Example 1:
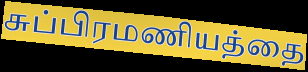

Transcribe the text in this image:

சுப்பிரமணியத்தை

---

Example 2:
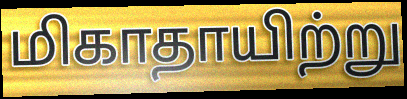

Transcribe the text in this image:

மிகாதாயிற்று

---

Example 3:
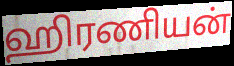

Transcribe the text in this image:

ஹிரணியன்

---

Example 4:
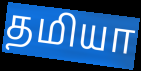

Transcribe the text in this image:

தமியா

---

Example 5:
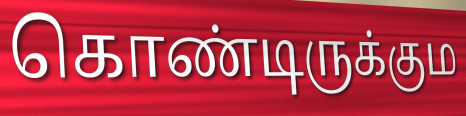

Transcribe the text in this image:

கொண்டிருக்கும